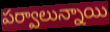
పర్వాలున్నాయి